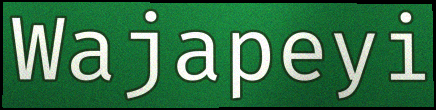
Wajapeyi